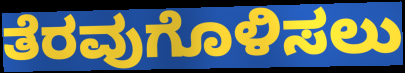
ತೆರವುಗೊಳಿಸಲು